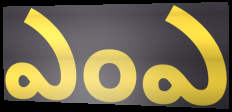
ఎంఎ